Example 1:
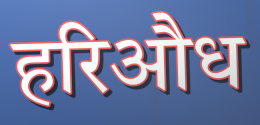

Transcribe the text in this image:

हरिऔध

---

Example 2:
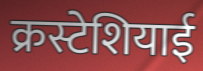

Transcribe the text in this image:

क्रस्टेशियाई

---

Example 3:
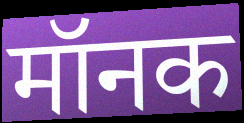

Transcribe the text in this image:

मॉनक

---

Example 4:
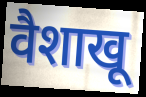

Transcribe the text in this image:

वैशाखू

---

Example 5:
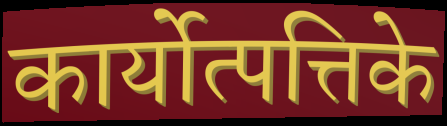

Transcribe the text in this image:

कार्योत्पत्तिके